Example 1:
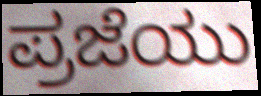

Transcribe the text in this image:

ಪ್ರಜೆಯು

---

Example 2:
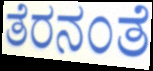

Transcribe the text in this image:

ತೆರನಂತೆ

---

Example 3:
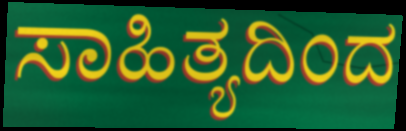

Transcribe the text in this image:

ಸಾಹಿತ್ಯದಿಂದ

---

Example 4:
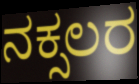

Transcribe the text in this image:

ನಕ್ಸಲರ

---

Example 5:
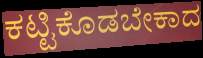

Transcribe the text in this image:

ಕಟ್ಟಿಕೊಡಬೇಕಾದ